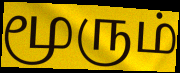
மூரும்